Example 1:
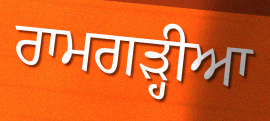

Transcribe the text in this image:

ਰਾਮਗੜ੍ਹੀਆ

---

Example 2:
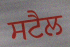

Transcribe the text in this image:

ਸਟੈਲ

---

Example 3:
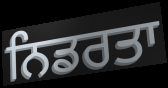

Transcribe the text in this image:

ਨਿਡਰਤਾ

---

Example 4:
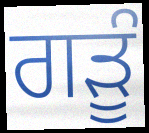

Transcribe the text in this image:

ਗੜੂੰ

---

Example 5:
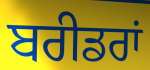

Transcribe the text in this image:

ਬਰੀਡਰਾਂ